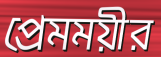
প্রেমময়ীর